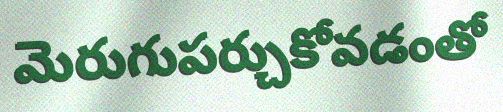
మెరుగుపర్చుకోవడంతో